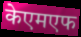
केएमएफ